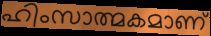
ഹിംസാത്മകമാണ്